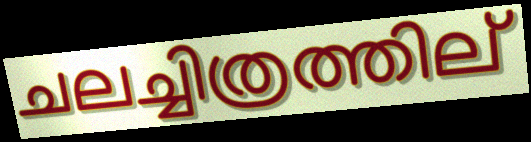
ചലച്ചിത്രത്തില്